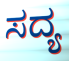
ಸದ್ಯ